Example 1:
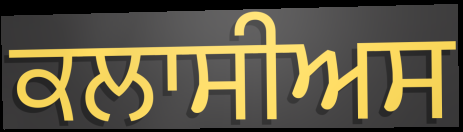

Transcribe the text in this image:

ਕਲਾਸੀਅਸ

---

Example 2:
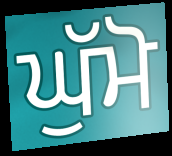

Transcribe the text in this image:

ਘੁੱਮੋ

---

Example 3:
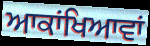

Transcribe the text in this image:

ਆਕਾਂਖਿਆਵਾਂ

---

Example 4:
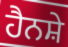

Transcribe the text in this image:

ਹੈਨਸ਼ੇ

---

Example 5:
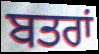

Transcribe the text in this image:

ਬਤਰਾਂ